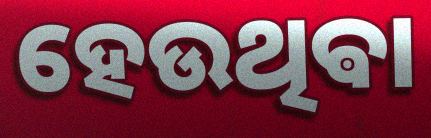
ହେଉଥିଵା